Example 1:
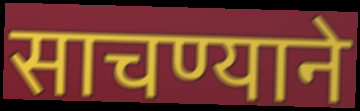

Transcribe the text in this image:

साचण्याने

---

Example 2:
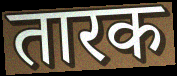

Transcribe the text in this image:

तारक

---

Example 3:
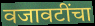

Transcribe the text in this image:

वजावटींचा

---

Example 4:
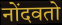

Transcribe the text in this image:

नोंदवतो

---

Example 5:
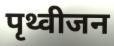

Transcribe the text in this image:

पृथ्वीजन